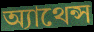
অ্যাথেন্স